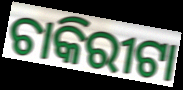
ଚାକିରୀଟା